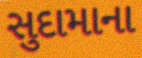
સુદામાના